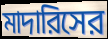
মাদারিসের